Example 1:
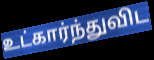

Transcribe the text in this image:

உட்கார்ந்துவிட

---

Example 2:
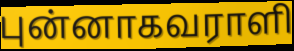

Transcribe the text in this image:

புன்னாகவராளி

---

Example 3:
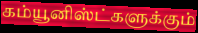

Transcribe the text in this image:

கம்யூனிஸ்ட்களுக்கும்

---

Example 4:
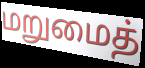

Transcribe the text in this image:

மறுமைத்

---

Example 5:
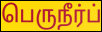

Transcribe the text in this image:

பெருநீர்ப்